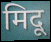
मिदू